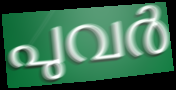
പുവർ